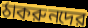
ঠাকরুনদের